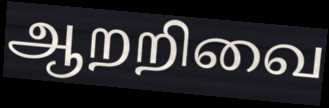
ஆறறிவை